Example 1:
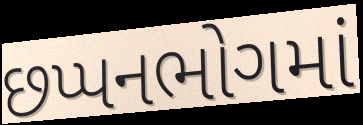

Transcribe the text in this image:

છપ્પનભોગમાં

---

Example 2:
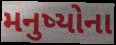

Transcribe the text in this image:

મનુષ્યોના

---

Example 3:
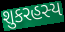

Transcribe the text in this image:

શુકરહસ્ય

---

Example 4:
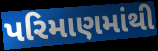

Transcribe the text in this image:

પરિમાણમાંથી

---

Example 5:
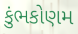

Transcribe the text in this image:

કુંભકોણમ